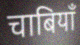
चाबियाँ